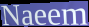
Naeem